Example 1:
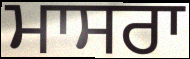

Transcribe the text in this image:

ਮਾਸਰਾ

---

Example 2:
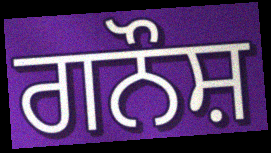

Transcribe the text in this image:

ਗਨੌਸ਼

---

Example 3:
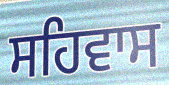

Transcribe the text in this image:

ਸਹਿਵਾਸ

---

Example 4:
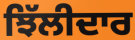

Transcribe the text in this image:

ਝਿੱਲੀਦਾਰ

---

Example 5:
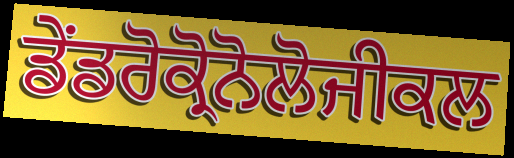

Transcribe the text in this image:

ਡੇਂਡਰੋਕ੍ਰੋਨੋਲੋਜੀਕਲ